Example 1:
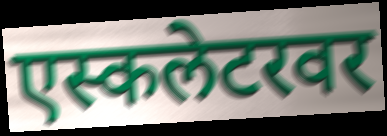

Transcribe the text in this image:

एस्कलेटरवर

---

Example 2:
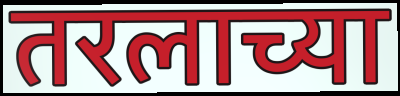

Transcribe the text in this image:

तरलाच्या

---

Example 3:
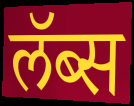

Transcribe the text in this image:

लॅब्स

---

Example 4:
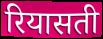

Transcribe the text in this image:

रियासती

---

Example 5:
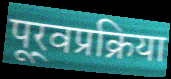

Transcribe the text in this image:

पूर्वप्रक्रिया